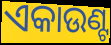
ଏକାଉଣ୍ଟ